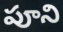
పూని